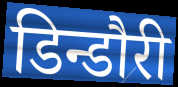
डिन्डौरी